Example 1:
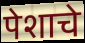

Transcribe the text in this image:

पेशाचे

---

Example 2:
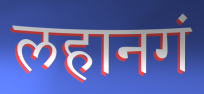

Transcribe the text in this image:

लहानगं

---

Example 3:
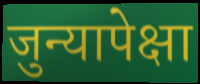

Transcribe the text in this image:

जुन्यापेक्षा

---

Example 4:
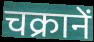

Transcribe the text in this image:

चक्रानें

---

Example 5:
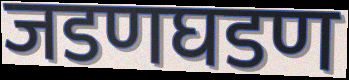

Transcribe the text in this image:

जडणघडण